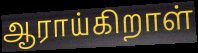
ஆராய்கிறாள்